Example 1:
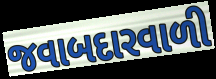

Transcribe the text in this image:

જવાબદારવાળી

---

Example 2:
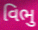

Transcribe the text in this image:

વિભુ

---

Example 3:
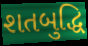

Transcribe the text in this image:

શતબુદ્ધિ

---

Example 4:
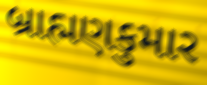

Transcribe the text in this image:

બ્રાહ્મણકુમાર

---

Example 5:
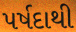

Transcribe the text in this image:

પર્ષદાથી